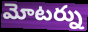
మోటర్ను